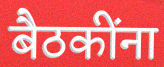
बैठकींना